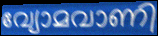
വ്യോമവാണി